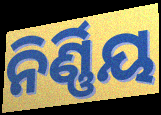
ନିର୍ଣ୍ଣିୟ